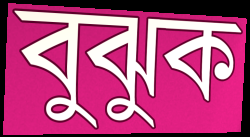
বুঝুক